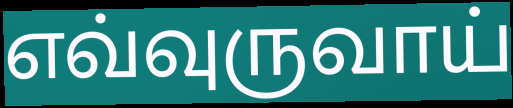
எவ்வுருவாய்